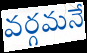
వర్గమనే